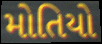
મોતિયો